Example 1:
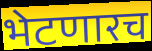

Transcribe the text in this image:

भेटणारच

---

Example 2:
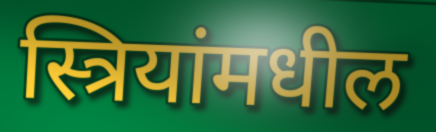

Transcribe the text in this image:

स्त्रियांमधील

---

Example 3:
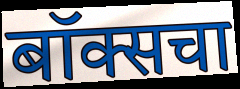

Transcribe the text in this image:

बॉक्सचा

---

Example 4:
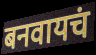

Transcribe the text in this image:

बनवायचं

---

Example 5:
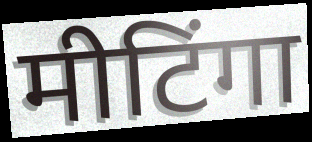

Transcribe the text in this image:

मीटिंगा